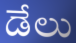
డేలు